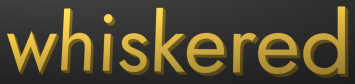
whiskered